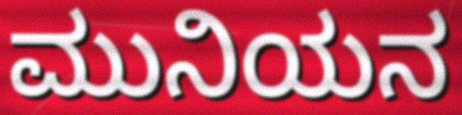
ಮುನಿಯನ